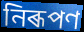
নিৰূপণ